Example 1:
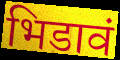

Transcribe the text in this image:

भिडावं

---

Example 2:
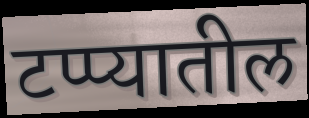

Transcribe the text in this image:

टप्प्यातील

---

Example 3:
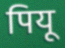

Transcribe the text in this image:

पियू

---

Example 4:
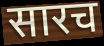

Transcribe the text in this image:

सारच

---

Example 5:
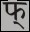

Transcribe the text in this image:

फ्